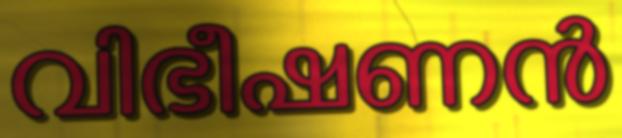
വിഭീഷണൻ